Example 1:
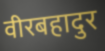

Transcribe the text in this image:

वीरबहादुर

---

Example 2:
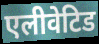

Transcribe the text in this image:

एलीवेटिड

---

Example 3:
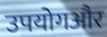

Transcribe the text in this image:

उपयोगऔर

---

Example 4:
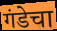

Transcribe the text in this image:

गंडेचा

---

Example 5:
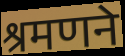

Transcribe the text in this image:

श्रमणने